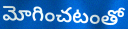
మోగించటంతో